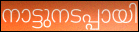
നാട്ടുനടപ്പായി